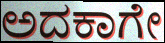
ಅದಕಾಗೇ